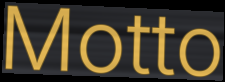
Motto